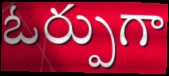
ఓర్పుగా